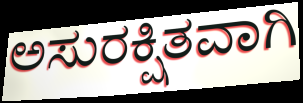
ಅಸುರಕ್ಷಿತವಾಗಿ